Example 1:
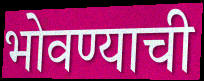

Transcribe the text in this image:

भोवण्याची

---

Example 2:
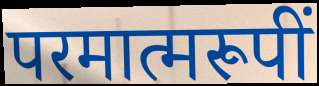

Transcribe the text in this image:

परमात्मरूपीं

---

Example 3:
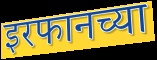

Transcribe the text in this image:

इरफानच्या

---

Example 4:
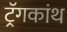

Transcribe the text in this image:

ट्रॅगकांथ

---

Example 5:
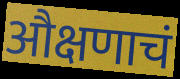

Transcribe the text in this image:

औक्षणाचं